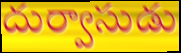
దుర్వాసుడు